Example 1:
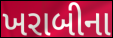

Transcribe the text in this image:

ખરાબીના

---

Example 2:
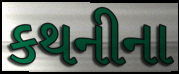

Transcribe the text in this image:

કથનીના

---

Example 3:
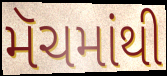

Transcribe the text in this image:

મૅચમાંથી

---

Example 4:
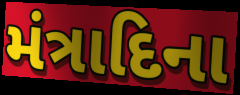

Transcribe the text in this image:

મંત્રાદિના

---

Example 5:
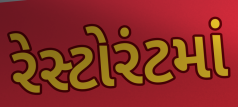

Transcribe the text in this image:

રેસ્ટોરંટમાં